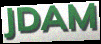
JDAM